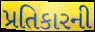
પ્રતિકારની